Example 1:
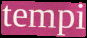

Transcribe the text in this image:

tempi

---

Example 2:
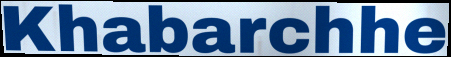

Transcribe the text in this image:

Khabarchhe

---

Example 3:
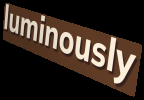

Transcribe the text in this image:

luminously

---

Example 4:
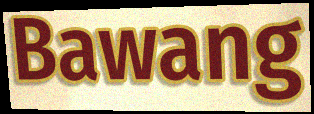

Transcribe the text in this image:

Bawang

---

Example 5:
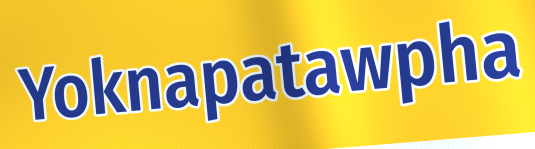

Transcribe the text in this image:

Yoknapatawpha